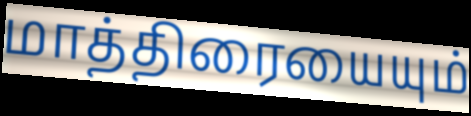
மாத்திரையையும்